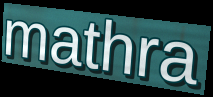
mathra